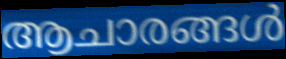
ആചാരങ്ങൾ